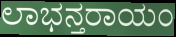
ಲಾಭನ್ತರಾಯಂ